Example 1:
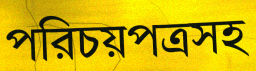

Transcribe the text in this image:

পরিচয়পত্রসহ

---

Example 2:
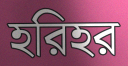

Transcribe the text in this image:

হরিহর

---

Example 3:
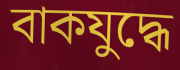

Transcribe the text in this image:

বাকযুদ্ধে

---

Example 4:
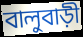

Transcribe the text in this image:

বালুবাড়ী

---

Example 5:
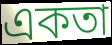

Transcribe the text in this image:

একতা